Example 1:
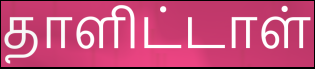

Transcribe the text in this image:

தாளிட்டாள்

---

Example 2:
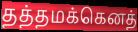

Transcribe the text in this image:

தத்தமக்கெனத்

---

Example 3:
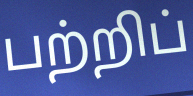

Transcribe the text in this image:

பற்றிப்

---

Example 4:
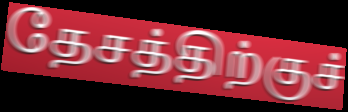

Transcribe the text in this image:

தேசத்திற்குச்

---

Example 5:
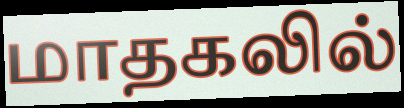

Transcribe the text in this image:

மாதகலில்